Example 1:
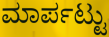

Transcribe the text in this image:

ಮಾರ್ಪಟ್ಟು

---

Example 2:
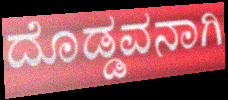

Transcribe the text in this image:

ದೊಡ್ಡವನಾಗಿ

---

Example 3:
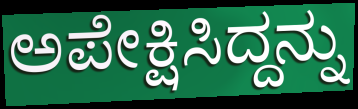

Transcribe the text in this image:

ಅಪೇಕ್ಷಿಸಿದ್ದನ್ನು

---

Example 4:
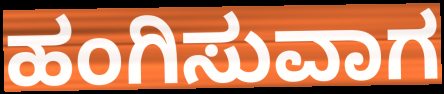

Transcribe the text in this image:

ಹಂಗಿಸುವಾಗ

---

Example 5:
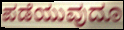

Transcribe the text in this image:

ಪಡೆಯುವುದೂ